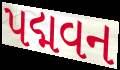
પદ્મવન